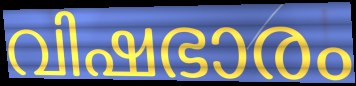
വിഷഭാരം